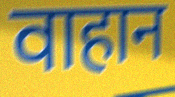
वाहान